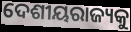
ଦେଶୀୟରାଜ୍ୟକୁ